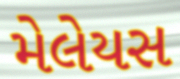
મેલેયસ